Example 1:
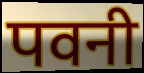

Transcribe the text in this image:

पवनी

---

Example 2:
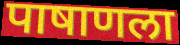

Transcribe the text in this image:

पाषाणला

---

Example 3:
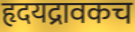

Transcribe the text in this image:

हृदयद्रावकच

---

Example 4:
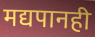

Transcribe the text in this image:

मद्यपानही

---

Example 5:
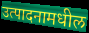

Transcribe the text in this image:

उत्पादनामधील